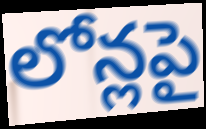
లోన్లపై